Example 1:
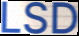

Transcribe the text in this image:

LSD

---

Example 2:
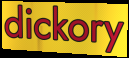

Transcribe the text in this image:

dickory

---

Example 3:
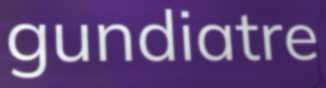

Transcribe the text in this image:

gundiatre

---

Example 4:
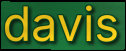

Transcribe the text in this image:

davis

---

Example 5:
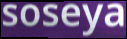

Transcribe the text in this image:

soseya